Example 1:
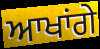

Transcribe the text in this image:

ਆਖਾਂਗੇ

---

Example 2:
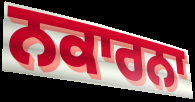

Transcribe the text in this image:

ਨਕਾਰਨਾ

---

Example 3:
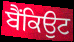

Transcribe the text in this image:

ਬੈਂਕਿਉਟ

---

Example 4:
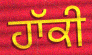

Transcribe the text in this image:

ਹਾੱਕੀ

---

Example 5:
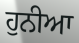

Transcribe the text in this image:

ਹੁਨੀਆ